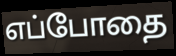
எப்போதை